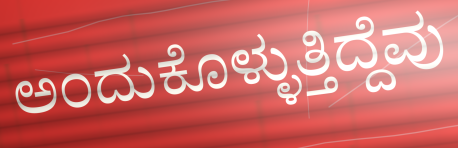
ಅಂದುಕೊಳ್ಳುತ್ತಿದ್ದೆವು